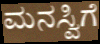
ಮನಸ್ವಿಗೆ